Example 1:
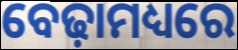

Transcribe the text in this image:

ବେଢ଼ାମଧ୍ୟରେ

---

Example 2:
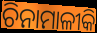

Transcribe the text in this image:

ଚିନାମାଳୀକି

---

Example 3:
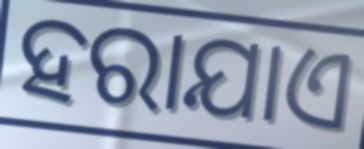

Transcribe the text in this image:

ହରାଯାଏ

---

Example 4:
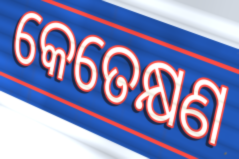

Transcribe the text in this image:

କେତେକ୍ଷଣ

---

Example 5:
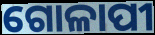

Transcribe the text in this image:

ଗୋଳାପୀ